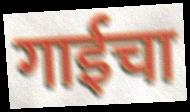
गाईचा